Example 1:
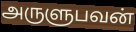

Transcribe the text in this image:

அருளுபவன்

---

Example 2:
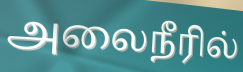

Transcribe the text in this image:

அலைநீரில்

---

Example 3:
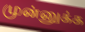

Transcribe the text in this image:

முன்னுக்க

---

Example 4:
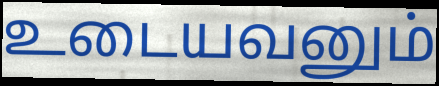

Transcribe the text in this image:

உடையவனும்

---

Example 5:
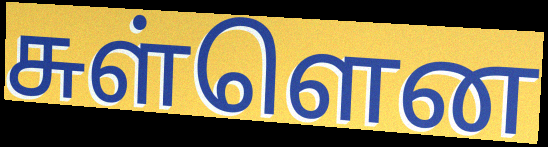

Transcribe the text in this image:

சுள்ளென